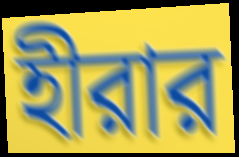
হীরার